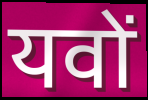
यवों